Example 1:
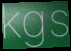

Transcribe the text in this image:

kgs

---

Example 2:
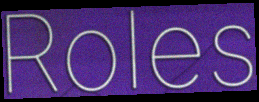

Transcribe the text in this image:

Roles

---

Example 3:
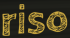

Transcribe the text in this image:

riso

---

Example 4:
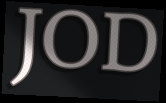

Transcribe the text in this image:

JOD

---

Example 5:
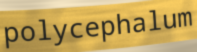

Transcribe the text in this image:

polycephalum